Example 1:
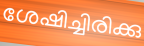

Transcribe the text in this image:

ശേഷിച്ചിരിക്കു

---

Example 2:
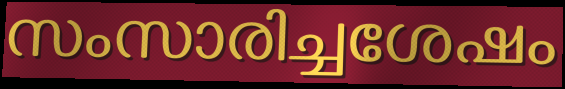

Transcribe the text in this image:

സംസാരിച്ചശേഷം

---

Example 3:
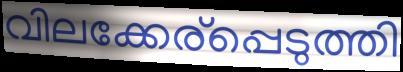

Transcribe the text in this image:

വിലക്കേര്പ്പെടുത്തി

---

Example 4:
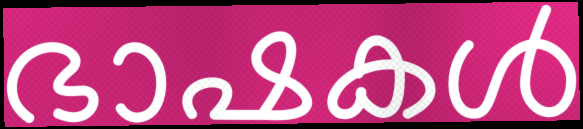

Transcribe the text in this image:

ഭാഷകൾ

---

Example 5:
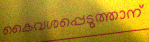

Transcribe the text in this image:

കൈവശപ്പെടുത്താന്